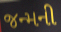
જન્મની